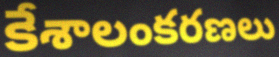
కేశాలంకరణలు